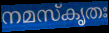
നമസ്കൃതഃ